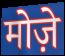
मोज़े